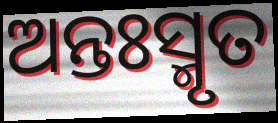
ଅନ୍ତଃସ୍ମୃତ